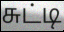
சுட்டி